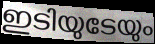
ഇടിയുടേയും